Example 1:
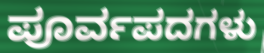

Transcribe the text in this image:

ಪೂರ್ವಪದಗಳು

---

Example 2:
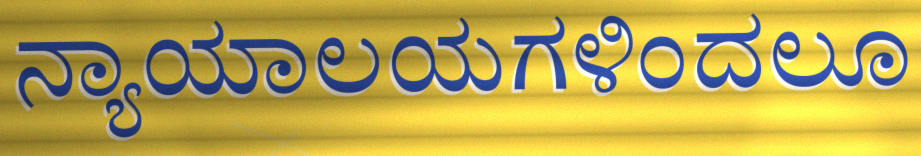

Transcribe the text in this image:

ನ್ಯಾಯಾಲಯಗಳಿಂದಲೂ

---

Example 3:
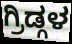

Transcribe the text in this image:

ಗ್ರಿಡ್ಗಳ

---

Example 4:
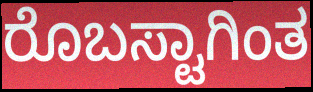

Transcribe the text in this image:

ರೊಬಸ್ಟಾಗಿಂತ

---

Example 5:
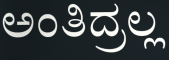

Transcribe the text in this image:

ಅಂತಿದ್ರಲ್ಲ